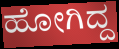
ಹೋಗಿದ್ದ